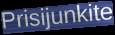
Prisijunkite